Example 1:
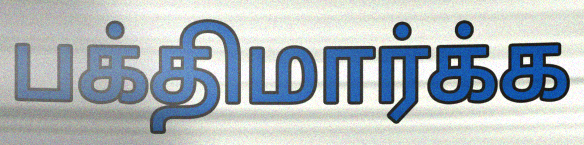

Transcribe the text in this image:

பக்திமார்க்க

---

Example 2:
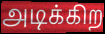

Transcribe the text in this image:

அடிக்கிற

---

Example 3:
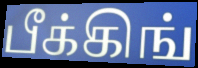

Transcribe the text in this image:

பீக்கிங்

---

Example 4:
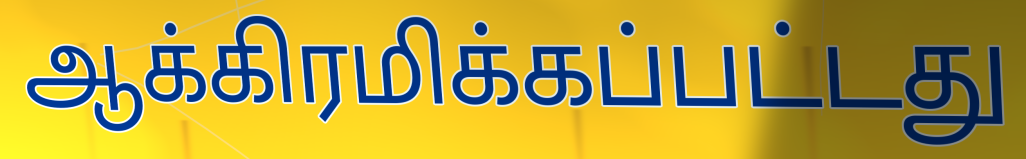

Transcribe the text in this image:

ஆக்கிரமிக்கப்பட்டது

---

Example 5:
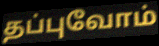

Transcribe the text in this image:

தப்புவோம்